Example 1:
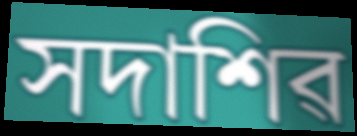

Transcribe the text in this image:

সদাশিৱ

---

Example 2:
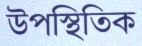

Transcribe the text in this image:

উপস্থিতিক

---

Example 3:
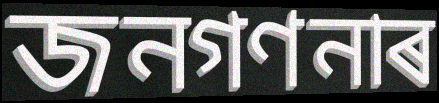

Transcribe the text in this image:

জনগণনাৰ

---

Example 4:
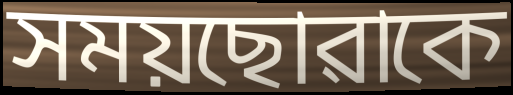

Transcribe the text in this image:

সময়ছোৱাকে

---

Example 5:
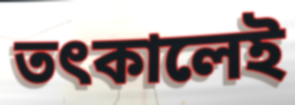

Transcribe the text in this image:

তৎকালেই